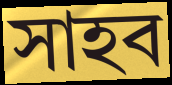
সাহব